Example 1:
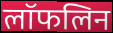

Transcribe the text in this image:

लॉफलिन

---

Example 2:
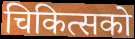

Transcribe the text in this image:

चिकित्सको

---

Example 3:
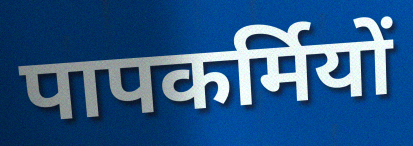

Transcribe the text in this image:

पापकर्मियों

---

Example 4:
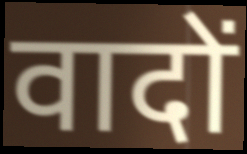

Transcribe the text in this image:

वादों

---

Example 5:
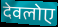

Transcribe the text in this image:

देवलोए